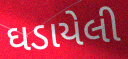
ઘડાયેલી